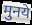
मुनये